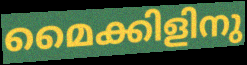
മൈക്കിളിനു